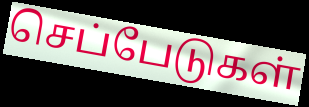
செப்பேடுகள்